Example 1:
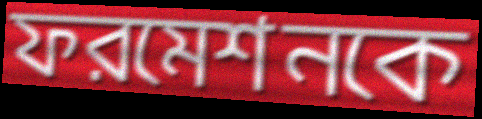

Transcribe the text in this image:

ফরমেশনকে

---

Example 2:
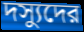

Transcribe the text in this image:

দস্যুদের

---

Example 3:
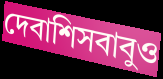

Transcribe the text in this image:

দেবাশিসবাবুও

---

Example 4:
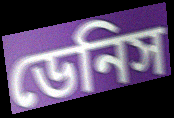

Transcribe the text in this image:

ডেনিস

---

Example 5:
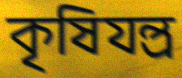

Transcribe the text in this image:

কৃষিযন্ত্র